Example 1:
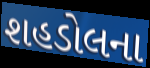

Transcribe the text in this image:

શહડોલના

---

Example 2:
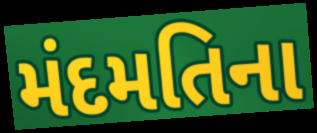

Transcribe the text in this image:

મંદમતિના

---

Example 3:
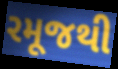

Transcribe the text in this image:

રમૂજથી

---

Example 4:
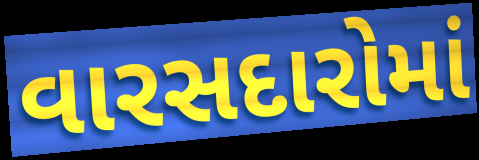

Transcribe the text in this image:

વારસદારોમાં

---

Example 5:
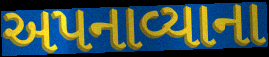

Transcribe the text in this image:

અપનાવ્યાના